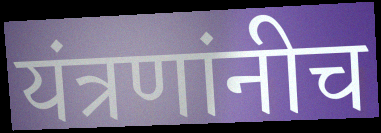
यंत्रणांनीच